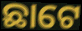
ଛାଟେ